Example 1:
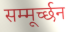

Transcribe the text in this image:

सम्मूर्च्छन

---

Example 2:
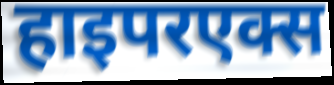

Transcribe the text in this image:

हाइपरएक्स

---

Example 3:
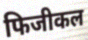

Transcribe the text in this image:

फिजीकल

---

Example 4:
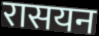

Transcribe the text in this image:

रासयन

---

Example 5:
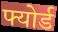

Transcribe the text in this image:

फ्योर्ड